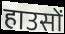
हाउसों